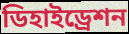
ডিহাইড্রেশন